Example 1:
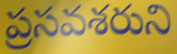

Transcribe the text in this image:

ప్రసవశరుని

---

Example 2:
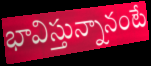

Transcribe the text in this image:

భావిస్తున్నానంటే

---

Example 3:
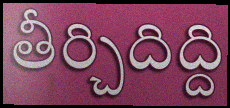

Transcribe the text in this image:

తీర్చిదిద్ది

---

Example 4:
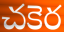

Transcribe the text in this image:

చకెర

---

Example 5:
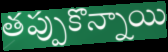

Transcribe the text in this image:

తప్పుకొన్నాయి